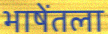
भाषेंतला